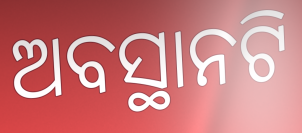
ଅବସ୍ଥାନଟି